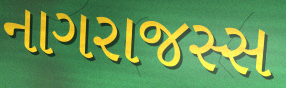
નાગરાજસ્સ